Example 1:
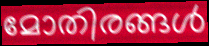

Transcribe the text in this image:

മോതിരങ്ങൾ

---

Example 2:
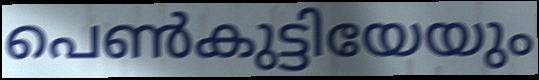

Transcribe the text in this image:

പെൺകുട്ടിയേയും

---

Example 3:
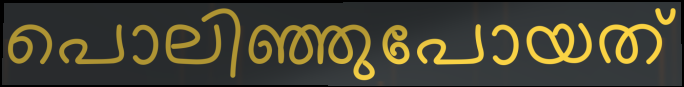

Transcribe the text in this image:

പൊലിഞ്ഞുപോയത്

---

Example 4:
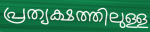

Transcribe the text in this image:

പ്രത്യക്ഷത്തിലുള്ള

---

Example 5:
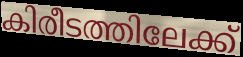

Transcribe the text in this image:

കിരീടത്തിലേക്ക്